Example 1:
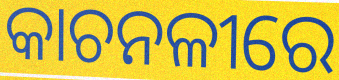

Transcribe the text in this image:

କାଚନଳୀରେ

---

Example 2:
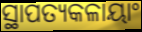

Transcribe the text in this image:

ସ୍ଥାପତ୍ୟକଳାୟାଂ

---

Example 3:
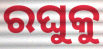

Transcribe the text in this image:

ରଘୁକୁ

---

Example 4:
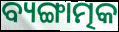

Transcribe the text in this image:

ବ୍ୟଙ୍ଗାତ୍ମକ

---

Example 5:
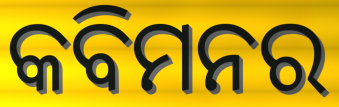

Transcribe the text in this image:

କବିମନର